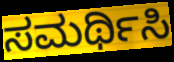
ಸಮರ್ಥಿಸಿ